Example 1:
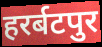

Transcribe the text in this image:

हरर्बटपुर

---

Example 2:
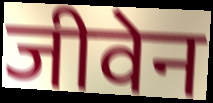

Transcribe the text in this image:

जीवेन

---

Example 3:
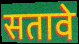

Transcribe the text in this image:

सतावे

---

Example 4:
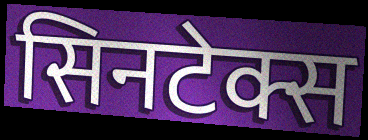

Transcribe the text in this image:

सिनटेक्स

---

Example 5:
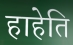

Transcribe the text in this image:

हाहेति